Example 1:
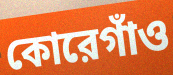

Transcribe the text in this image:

কোরেগাঁও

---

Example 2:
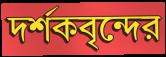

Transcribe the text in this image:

দর্শকবৃন্দের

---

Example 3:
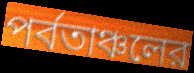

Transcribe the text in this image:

পর্বতাঞ্চলের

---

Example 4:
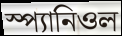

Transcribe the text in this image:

স্প্যানিওল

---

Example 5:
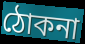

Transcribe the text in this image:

ঠোকনা